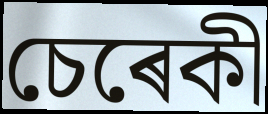
চেৰেকী